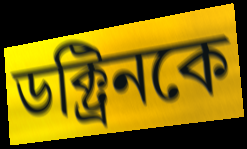
ডক্ট্রিনকে